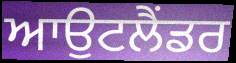
ਆਉਟਲੈਂਡਰ